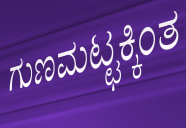
ಗುಣಮಟ್ಟಕ್ಕಿಂತ